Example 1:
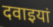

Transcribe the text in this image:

दवाइयां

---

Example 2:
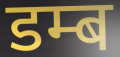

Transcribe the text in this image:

डम्ब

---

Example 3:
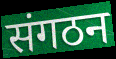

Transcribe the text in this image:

संगठन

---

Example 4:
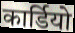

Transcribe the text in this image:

कार्डियो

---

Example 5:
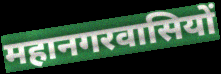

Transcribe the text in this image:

महानगरवासियों